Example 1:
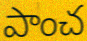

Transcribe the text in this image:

పాంచ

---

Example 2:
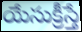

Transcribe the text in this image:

యేసుక్రీస్తే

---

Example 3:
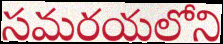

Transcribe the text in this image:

సమరయలోని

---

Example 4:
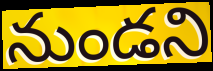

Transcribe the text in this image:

నుండని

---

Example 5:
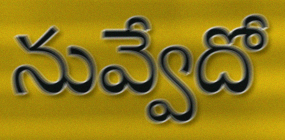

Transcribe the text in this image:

నువ్వేదో